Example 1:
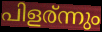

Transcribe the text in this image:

പിളര്ന്നും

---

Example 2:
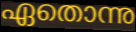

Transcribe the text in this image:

ഏതൊന്നു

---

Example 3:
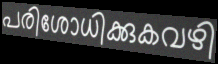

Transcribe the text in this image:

പരിശോധിക്കുകവഴി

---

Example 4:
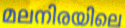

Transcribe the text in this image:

മലനിരയിലെ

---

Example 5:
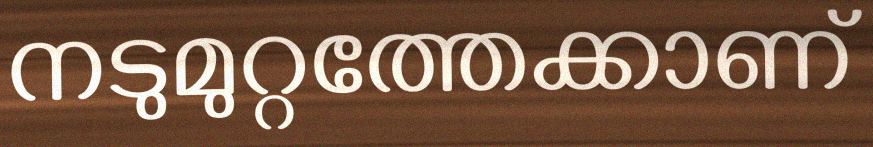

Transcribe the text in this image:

നടുമുറ്റത്തേക്കാണ്